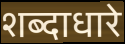
शब्दाधारे